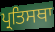
ਪ੍ਰਤਿਸਥਾ